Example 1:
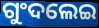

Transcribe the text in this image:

ଗୁଂଦଲେଇ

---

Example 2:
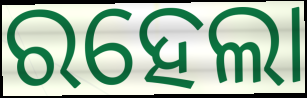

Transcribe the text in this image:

ରହେଲା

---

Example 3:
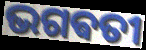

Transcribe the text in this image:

ଭଗଵତୀ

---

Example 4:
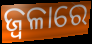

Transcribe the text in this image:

ଜ୍ୱଳାରେ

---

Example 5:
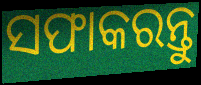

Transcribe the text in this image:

ସଫାକରନ୍ତୁ